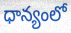
ధాన్యంలో